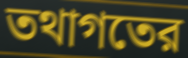
তথাগতের